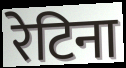
रेटिना